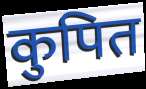
कुपित